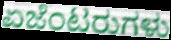
ಏಜೆಂಟರುಗಳು